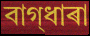
বাগ্‌ধাৰা